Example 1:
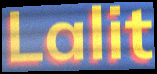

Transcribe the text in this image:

Lalit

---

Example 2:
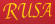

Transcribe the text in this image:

RUSA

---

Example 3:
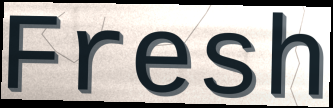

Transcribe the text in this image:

Fresh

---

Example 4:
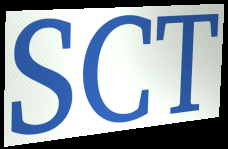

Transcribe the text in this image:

SCT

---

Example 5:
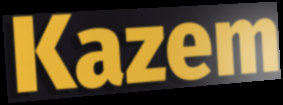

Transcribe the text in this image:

Kazem